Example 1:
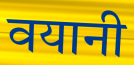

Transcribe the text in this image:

वयानी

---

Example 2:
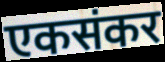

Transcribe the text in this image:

एकसंकर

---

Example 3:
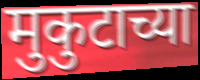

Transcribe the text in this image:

मुकुटाच्या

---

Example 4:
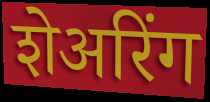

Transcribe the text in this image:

शेअरिंग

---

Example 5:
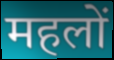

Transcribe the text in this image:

महलों